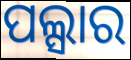
ପଲ୍ସାର